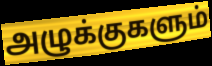
அழுக்குகளும்